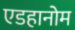
एडहानोम